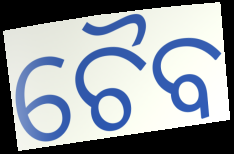
ଚୈବ